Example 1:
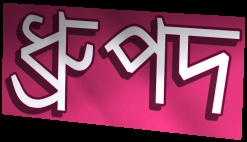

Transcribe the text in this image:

ধ্ৰুপদ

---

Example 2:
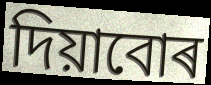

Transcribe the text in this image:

দিয়াবোৰ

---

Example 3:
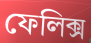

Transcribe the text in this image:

ফেলিক্স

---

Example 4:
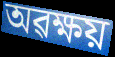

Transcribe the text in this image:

অৱক্ষয়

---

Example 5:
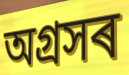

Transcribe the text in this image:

অগ্ৰসৰ